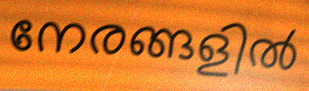
നേരങ്ങളിൽ